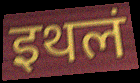
इथलं